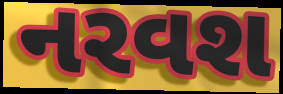
નરવશ